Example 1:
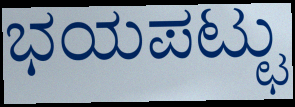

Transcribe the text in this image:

ಭಯಪಟ್ಟು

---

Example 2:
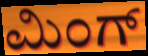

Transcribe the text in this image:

ಮಿಂಗ್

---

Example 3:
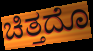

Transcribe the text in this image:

ಚಿತ್ತದೊ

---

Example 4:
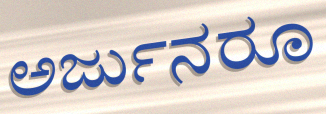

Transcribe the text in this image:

ಅರ್ಜುನರೂ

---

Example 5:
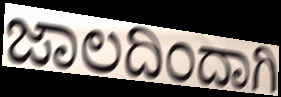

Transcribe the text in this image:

ಜಾಲದಿಂದಾಗಿ